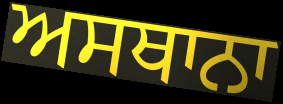
ਅਸਥਾਨਾ